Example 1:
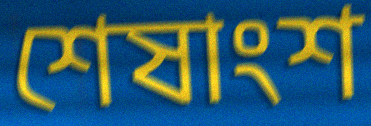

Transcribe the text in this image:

শেষাংশ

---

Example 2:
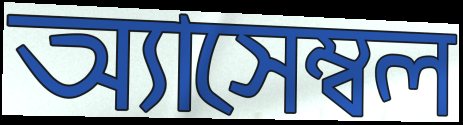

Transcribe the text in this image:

অ্যাসেম্বল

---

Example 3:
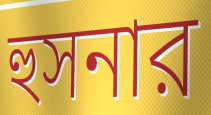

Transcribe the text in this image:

হুসনার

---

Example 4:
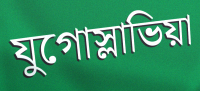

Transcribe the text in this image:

যুগোস্লাভিয়া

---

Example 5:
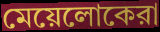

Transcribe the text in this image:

মেয়েলোকেরা